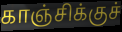
காஞ்சிக்குச்